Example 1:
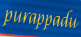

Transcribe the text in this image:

purappadu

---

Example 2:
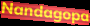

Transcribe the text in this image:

Nandagopa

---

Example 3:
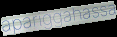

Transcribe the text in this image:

apariggahassa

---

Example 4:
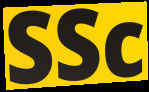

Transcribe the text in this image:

SSc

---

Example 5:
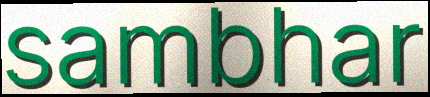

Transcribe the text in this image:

sambhar